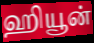
ஹியூன்